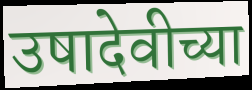
उषादेवीच्या